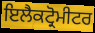
ਇਲੈਕਟ੍ਰੋਮੀਟਰ